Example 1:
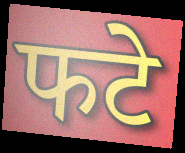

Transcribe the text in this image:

फटे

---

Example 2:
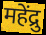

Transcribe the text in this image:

महेंद्रु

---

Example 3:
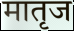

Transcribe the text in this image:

मातृज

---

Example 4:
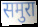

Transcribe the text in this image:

समुरा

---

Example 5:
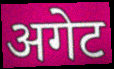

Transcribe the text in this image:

अगेट